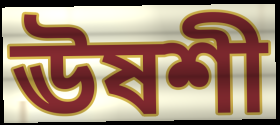
ঊষশী